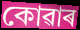
কোৱাৰ